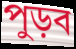
পুড়ব